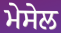
ਮੇਸੇਲ